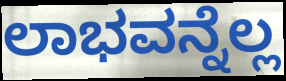
ಲಾಭವನ್ನೆಲ್ಲ